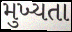
મુખ્યતા